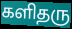
களிதரு